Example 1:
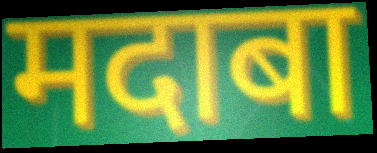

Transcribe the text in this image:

मदाबा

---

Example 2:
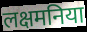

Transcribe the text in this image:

लक्षमनिया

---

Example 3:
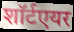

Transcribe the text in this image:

शॉर्टएयर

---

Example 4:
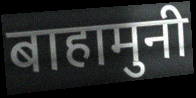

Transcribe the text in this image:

बाहामुनी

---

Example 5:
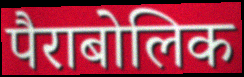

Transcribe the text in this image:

पैराबोलिक